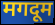
मगदूम